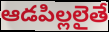
ఆడపిల్లలైతే